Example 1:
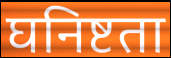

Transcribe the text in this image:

घनिष्टता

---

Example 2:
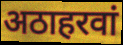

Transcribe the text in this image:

अठाहरवां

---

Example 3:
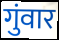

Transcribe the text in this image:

गुंवार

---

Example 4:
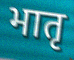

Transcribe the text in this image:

भातृ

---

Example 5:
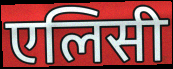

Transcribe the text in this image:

एलिसी